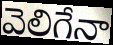
వెలిగేనా